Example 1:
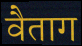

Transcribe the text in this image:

वैताग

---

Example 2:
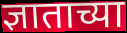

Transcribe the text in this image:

ज्ञाताच्या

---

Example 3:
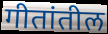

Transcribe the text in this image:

गीतांतील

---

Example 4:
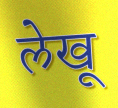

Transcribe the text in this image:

लेखू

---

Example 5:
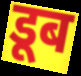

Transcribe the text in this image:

डूब